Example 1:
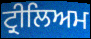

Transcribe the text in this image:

ਟ੍ਰੀਲਿਅਮ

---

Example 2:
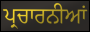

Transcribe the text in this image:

ਪ੍ਰਚਾਰਨੀਆਂ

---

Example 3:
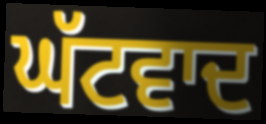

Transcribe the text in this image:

ਘੱਟਵਾਦ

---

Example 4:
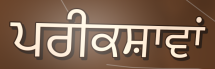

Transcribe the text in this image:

ਪਰੀਕਸ਼ਾਵਾਂ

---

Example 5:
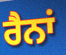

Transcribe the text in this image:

ਰੈਨਾਂ